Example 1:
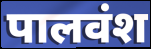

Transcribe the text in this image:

पालवंश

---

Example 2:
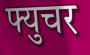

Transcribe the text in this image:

फ्युचर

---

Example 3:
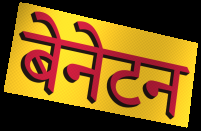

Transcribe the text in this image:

बेनेटन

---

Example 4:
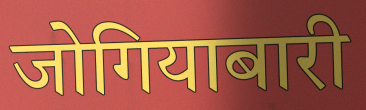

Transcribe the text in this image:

जोगियाबारी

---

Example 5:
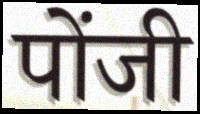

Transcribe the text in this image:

पोंजी